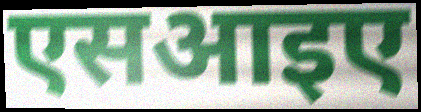
एसआइए